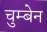
चुम्बेन